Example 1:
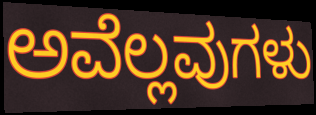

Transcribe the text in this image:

ಅವೆಲ್ಲವುಗಳು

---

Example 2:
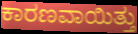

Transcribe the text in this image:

ಕಾರಣವಾಯಿತ್ತು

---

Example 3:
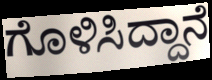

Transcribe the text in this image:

ಗೊಳಿಸಿದ್ದಾನೆ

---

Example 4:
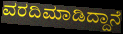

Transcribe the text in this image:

ವರದಿಮಾಡಿದ್ದಾನೆ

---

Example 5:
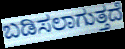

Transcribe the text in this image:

ಬಡಿಸಲಾಗುತ್ತದೆ